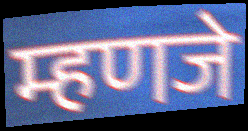
म्हणजे